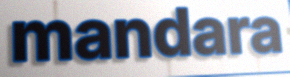
mandara